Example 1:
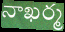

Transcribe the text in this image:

నాఖర్మ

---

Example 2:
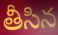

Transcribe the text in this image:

తీసిన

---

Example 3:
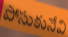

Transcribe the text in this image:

పోసుకునేవి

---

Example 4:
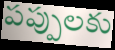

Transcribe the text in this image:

పప్పులకు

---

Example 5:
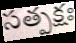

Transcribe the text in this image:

సత్పక్షః